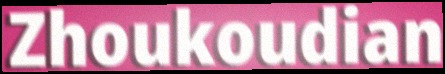
Zhoukoudian